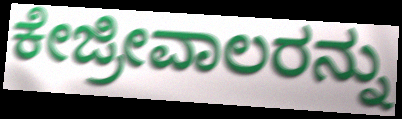
ಕೇಜ್ರೀವಾಲರನ್ನು